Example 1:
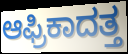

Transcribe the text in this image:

ಆಫ್ರಿಕಾದತ್ತ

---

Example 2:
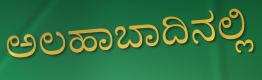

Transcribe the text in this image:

ಅಲಹಾಬಾದಿನಲ್ಲಿ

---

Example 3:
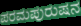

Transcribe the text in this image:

ಪರಮಪುರುಷನ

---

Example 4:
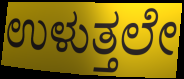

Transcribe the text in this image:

ಉಳುತ್ತಲೇ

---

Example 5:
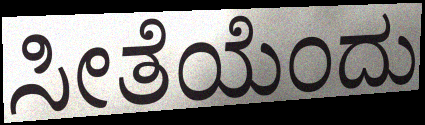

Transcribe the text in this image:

ಸೀತೆಯೆಂದು